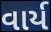
વાર્ય